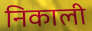
निकाली